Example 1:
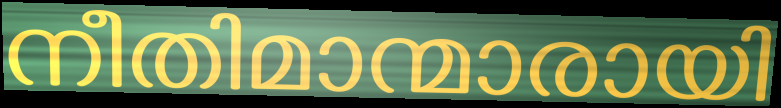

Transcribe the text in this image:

നീതിമാന്മാരായി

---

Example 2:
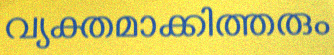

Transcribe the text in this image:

വ്യക്തമാക്കിത്തരും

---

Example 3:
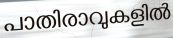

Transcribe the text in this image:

പാതിരാവുകളിൽ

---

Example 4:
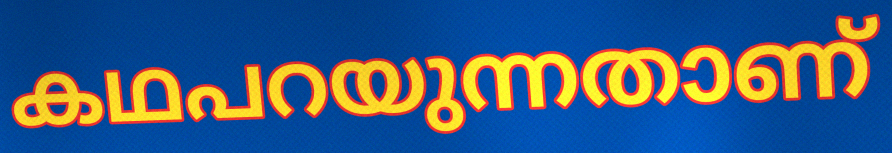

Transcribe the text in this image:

കഥപറയുന്നതാണ്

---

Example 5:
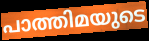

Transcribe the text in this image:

പാത്തിമയുടെ